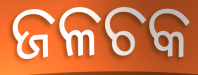
ଜଳଚକ